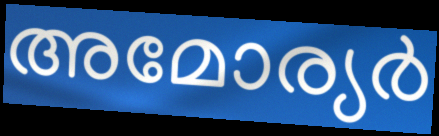
അമോര്യർ